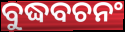
ବୁଦ୍ଧବଚନଂ